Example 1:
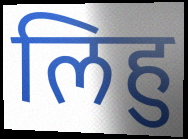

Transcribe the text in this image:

लिहु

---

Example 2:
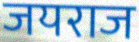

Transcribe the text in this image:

जयराज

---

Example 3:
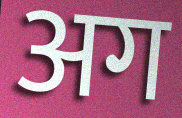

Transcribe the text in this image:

अग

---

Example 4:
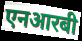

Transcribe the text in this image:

एनआरबी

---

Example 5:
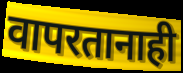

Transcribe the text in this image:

वापरतानाही